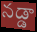
నడ్డా